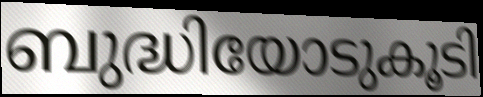
ബുദ്ധിയോടുകൂടി